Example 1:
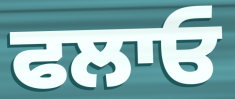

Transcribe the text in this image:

ਫਲਾਓ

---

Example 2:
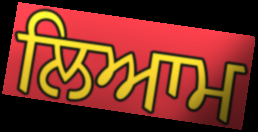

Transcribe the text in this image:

ਲਿਆਮ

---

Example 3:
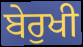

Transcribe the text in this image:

ਬੇਰੁਖੀ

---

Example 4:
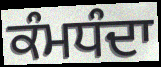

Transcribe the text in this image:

ਕੰਮਧੰਦਾ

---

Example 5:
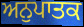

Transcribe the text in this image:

ਅਨੁਪਾਤਕ